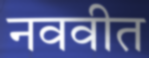
नववीत